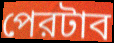
পেরটাব